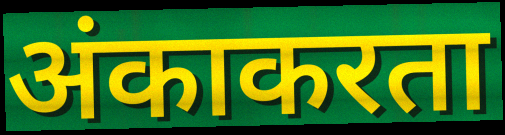
अंकाकरता